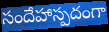
సందేహాస్పదంగా